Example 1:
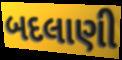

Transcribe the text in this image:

બદલાણી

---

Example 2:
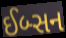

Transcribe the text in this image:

ઈબ્સન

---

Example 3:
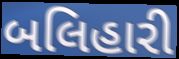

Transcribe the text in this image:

બલિહારી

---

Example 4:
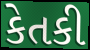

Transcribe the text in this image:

કેતકી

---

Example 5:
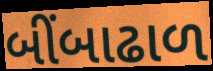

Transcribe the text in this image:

બીંબાઢાળ